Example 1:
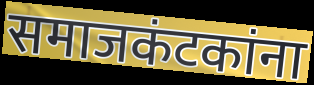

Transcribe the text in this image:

समाजकंटकांना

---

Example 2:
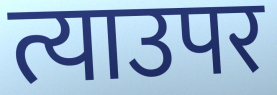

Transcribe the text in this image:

त्याउपर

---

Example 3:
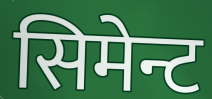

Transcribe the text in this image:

सिमेन्ट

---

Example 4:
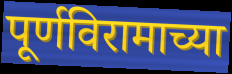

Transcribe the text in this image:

पूर्णविरामाच्या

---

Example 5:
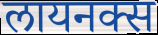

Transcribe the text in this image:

लायनक्स